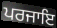
ਪਰਜਾਇ